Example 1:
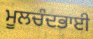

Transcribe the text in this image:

ਮੂਲਚੰਦਭਾਈ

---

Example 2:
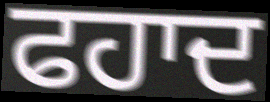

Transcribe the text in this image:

ਫਹਾਦ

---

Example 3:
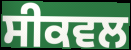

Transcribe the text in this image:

ਸੀਕਵਲ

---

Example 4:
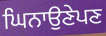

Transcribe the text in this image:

ਘਿਨਾਉਣੇਪਣ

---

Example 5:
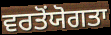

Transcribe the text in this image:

ਵਰਤੋਂਯੋਗਤਾ